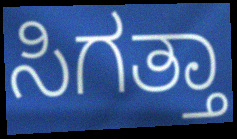
ಸಿಗತ್ತಾ